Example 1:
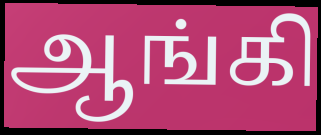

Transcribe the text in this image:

ஆங்கி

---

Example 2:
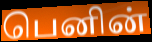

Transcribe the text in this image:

பெனின்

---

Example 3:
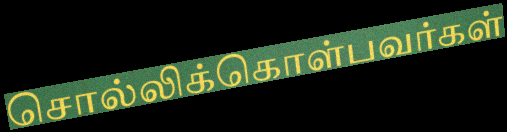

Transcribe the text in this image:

சொல்லிக்கொள்பவர்கள்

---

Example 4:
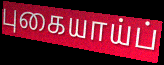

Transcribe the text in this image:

புகையாய்ப்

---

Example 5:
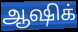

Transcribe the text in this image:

ஆஷிக்